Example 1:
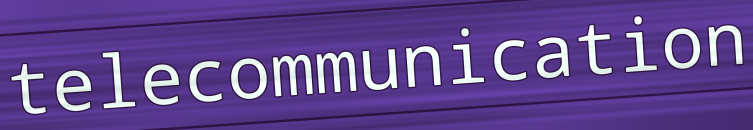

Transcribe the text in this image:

telecommunication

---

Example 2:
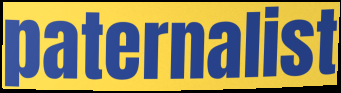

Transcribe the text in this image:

paternalist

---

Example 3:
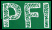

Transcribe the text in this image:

PFI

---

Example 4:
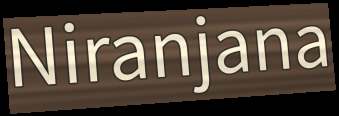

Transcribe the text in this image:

Niranjana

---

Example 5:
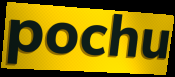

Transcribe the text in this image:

pochu